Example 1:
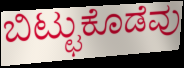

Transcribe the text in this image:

ಬಿಟ್ಟುಕೊಡೆವು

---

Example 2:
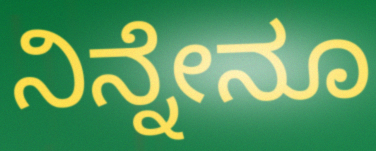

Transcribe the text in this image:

ನಿನ್ನೇನೂ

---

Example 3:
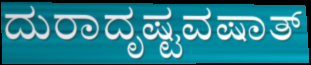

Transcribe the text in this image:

ದುರಾದೃಷ್ಟವಷಾತ್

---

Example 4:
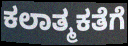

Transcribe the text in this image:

ಕಲಾತ್ಮಕತೆಗೆ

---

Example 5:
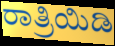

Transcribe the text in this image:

ರಾತ್ರಿಯಿಡಿ